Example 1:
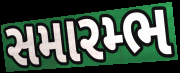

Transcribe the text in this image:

સમારમ્ભ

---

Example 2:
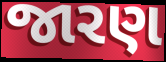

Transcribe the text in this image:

જારણ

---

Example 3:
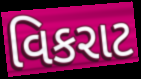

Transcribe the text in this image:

વિકરાટ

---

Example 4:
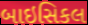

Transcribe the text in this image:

બાઇસિકલ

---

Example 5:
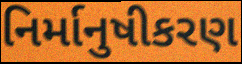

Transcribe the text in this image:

નિર્માનુષીકરણ